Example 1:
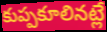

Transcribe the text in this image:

కుప్పకూలినట్లే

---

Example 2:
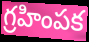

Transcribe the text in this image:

గ్రహింపక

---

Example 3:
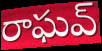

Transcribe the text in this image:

రాఘవ్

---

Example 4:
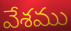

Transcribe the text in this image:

వేశము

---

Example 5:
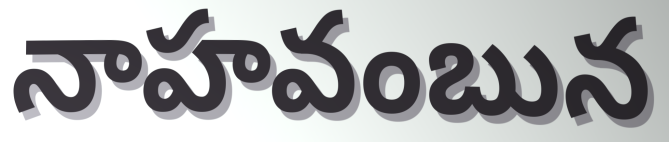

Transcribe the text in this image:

నాహవంబున